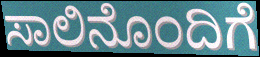
ಸಾಲಿನೊಂದಿಗೆ